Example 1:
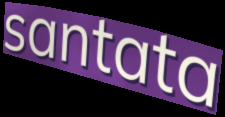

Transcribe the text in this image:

santata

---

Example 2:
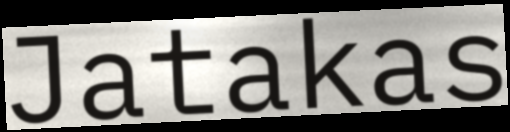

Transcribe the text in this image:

Jatakas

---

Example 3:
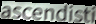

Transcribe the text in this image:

ascendisti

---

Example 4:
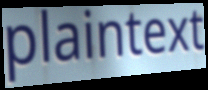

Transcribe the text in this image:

plaintext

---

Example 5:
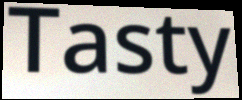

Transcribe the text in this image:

Tasty